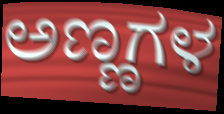
ಅಣ್ಣಗಳ